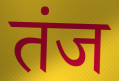
तंज